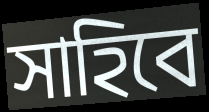
সাহিবে